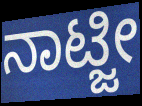
ನಾಟ್ಜೀ